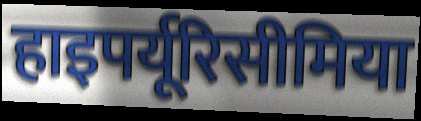
हाइपर्यूरिसीमिया